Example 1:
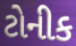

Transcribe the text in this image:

ટોનીક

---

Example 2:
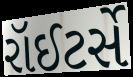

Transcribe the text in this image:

રૉઈટર્સે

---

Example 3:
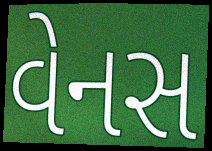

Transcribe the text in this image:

વેનસ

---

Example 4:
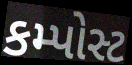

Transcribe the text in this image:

કમ્પોસ્ટ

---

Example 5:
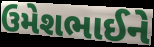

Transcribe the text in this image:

ઉમેશભાઈને